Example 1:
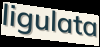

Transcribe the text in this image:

ligulata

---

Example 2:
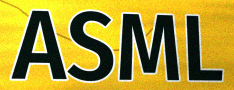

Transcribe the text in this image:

ASML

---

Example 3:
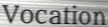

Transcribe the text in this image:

Vocation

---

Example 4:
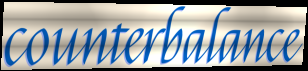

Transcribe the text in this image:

counterbalance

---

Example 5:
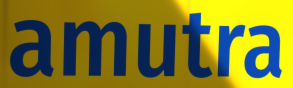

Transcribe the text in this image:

amutra